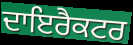
ਦਾਇਰੈਕਟਰ